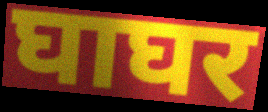
घाघर